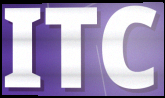
ITC